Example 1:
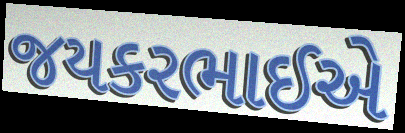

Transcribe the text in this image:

જયકરભાઈએ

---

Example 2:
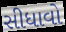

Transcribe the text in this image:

સીધાવો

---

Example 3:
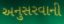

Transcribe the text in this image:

અનુસરવાની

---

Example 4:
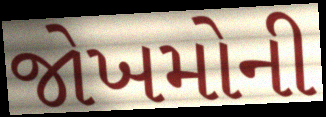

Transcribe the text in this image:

જોખમોની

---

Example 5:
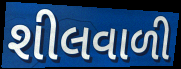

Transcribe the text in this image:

શીલવાળી